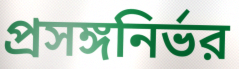
প্রসঙ্গনির্ভর